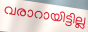
വരാറായിട്ടില്ല